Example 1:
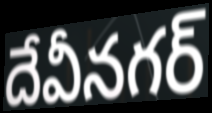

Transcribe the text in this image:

దేవీనగర్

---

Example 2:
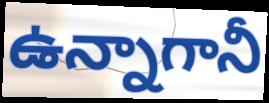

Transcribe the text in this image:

ఉన్నాగానీ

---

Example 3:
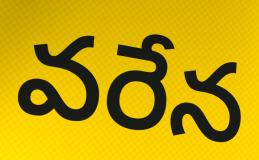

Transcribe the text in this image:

వరేన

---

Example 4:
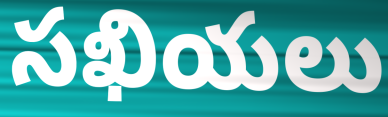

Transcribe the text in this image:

సఖియలు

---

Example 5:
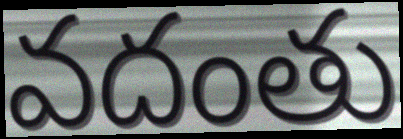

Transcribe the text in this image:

వదంతు